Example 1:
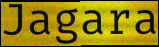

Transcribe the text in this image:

Jagara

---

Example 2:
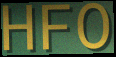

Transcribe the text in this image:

HFO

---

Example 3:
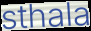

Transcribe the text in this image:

sthala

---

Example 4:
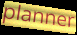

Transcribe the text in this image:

planner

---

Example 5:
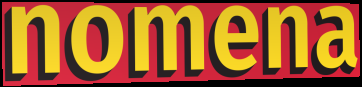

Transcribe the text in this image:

nomena